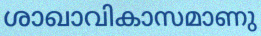
ശാഖാവികാസമാണു